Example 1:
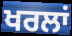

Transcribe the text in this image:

ਖਰਲਾਂ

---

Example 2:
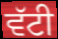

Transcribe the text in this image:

ਵੱਟੀ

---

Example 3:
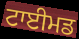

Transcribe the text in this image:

ਟਾਈਮਡ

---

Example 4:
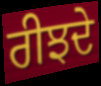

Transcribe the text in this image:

ਰੀਝਦੇ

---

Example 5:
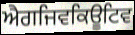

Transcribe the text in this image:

ਐਗਜਿਵਕਿਊਟਿਵ